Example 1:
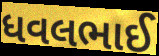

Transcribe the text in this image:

ધવલભાઈ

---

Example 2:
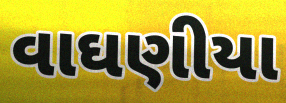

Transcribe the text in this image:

વાઘણીયા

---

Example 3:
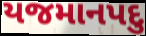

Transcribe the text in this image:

યજમાનપદુ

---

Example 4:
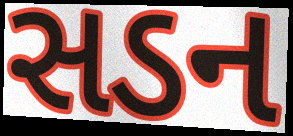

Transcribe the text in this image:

સડન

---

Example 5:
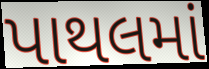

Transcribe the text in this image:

પાથલમાં